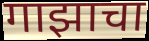
गाझाचा